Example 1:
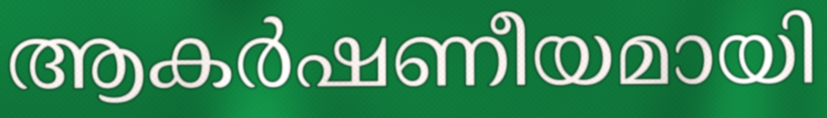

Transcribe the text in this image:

ആകർഷണീയമായി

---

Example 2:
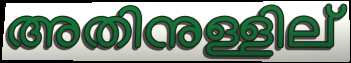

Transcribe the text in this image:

അതിനുള്ളില്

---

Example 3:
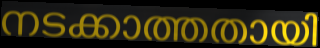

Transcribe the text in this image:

നടക്കാത്തതായി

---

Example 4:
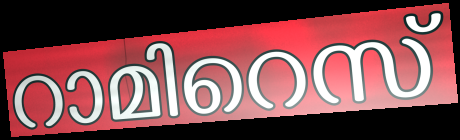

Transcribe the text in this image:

റാമിറെസ്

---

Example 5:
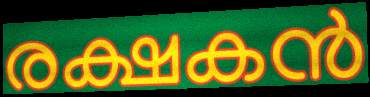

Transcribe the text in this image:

രക്ഷകൻ